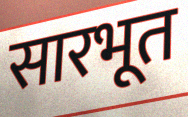
सारभूत